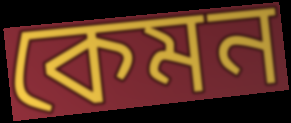
কেমন